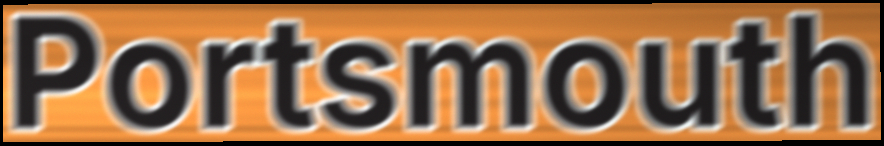
Portsmouth